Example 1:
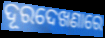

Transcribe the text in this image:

ଦୂରଦେଖଣାରେ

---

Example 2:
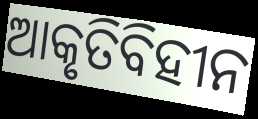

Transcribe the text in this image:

ଆକୃତିବିହୀନ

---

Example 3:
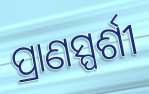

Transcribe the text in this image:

ପ୍ରାଣସ୍ପର୍ଶୀ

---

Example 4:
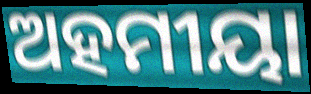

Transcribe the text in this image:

ଅହମୀୟା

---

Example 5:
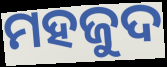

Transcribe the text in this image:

ମହଜୁଦ